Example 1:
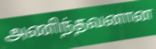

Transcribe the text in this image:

அணிந்தவனான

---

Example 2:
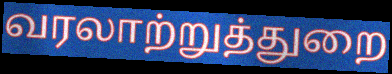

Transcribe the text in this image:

வரலாற்றுத்துறை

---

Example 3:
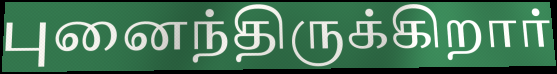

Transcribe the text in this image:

புனைந்திருக்கிறார்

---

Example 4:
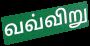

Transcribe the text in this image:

வவ்விறு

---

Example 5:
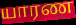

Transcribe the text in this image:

யாரண